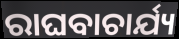
ରାଘବାଚାର୍ଯ୍ୟ